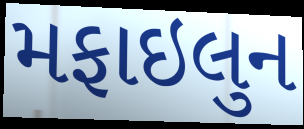
મફાઇલુન